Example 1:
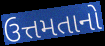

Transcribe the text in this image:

ઉત્તમતાનો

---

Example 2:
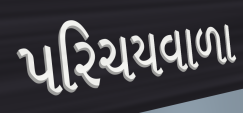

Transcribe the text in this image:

પરિચયવાળા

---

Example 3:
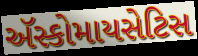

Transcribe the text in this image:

ઍસ્કોમાયસેટિસ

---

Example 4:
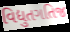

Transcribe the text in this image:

વિદ્યુતગતિજ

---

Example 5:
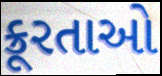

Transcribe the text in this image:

ક્રૂરતાઓ